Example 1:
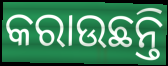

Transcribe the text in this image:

କରାଉଛନ୍ତି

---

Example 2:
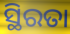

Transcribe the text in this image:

ସ୍ଥିରତା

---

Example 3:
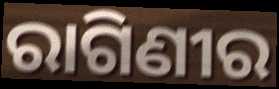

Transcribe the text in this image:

ରାଗିଣୀର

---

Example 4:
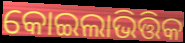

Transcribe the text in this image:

କୋଇଲାଭିତ୍ତିକ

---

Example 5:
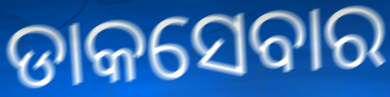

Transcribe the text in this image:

ଡାକସେବାର